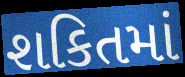
શકિતમાં